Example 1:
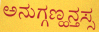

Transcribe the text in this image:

ಅನುಗ್ಗಣ್ಹನ್ತಸ್ಸ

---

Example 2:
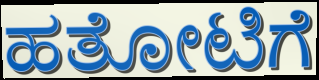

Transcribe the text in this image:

ಹತೋಟಿಗೆ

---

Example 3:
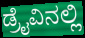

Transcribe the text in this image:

ಡ್ರೈವಿನಲ್ಲಿ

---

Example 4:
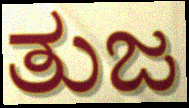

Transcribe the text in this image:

ತುಜ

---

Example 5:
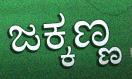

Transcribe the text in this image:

ಜಕ್ಕಣ್ಣ